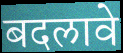
बदलावे